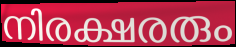
നിരക്ഷരരും